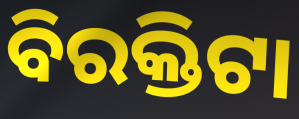
ବିରକ୍ତିଟା